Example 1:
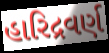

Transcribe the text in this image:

હારિદ્રવર્ણ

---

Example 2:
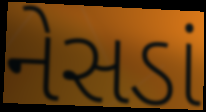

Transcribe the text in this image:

નેસડાં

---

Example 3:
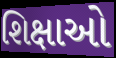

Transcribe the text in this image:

શિક્ષાઓ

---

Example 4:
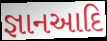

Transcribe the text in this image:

જ્ઞાનઆદિ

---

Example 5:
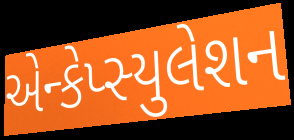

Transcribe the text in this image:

એન્કેપ્સ્યુલેશન